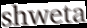
shweta